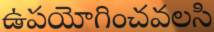
ఉపయోగించవలసి